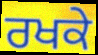
ਰਖਕੇ